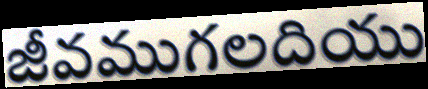
జీవముగలదియు